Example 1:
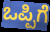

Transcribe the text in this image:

ಒಪ್ಪಿಗೆ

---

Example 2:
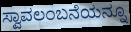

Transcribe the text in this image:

ಸ್ವಾವಲಂಬನೆಯನ್ನೂ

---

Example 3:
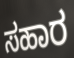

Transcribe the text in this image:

ಸಹಾರ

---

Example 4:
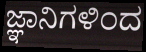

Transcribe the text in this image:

ಜ್ಞಾನಿಗಳಿಂದ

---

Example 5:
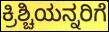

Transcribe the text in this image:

ಕ್ರಿಶ್ಚಿಯನ್ನರಿಗೆ